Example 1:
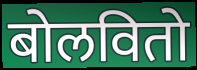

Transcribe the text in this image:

बोलवितो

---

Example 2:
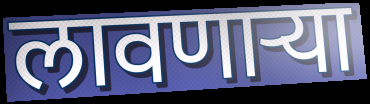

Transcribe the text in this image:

लावणाऱ्या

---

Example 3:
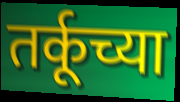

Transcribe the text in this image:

तर्कूच्या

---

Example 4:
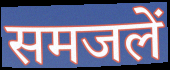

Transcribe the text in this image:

समजलें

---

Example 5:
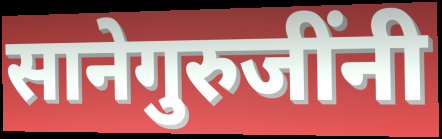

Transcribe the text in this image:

सानेगुरुजींनी